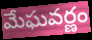
మేఘవర్ణం